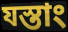
যস্তাং